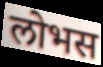
लोभस